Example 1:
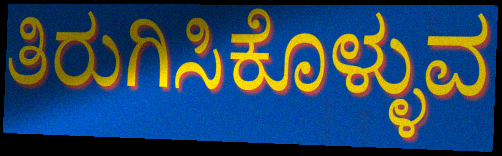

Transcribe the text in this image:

ತಿರುಗಿಸಿಕೊಳ್ಳುವ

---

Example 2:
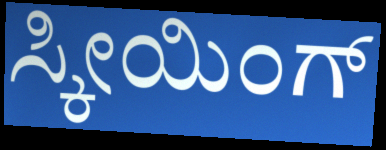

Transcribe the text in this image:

ಸ್ಕೀಯಿಂಗ್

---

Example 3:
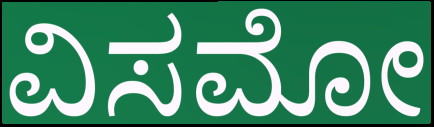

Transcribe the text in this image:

ವಿಸಮೋ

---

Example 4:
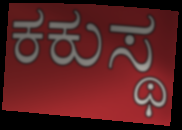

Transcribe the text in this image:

ಕಕುಸ್ಥ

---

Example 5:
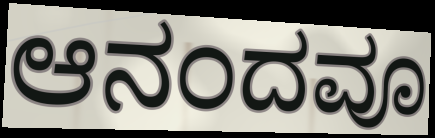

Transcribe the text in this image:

ಆನಂದವೂ